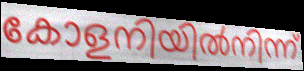
കോളനിയിൽനിന്ന്